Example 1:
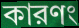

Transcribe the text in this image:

কারণং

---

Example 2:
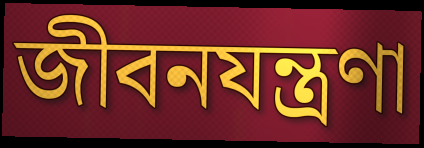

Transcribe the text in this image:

জীবনযন্ত্রণা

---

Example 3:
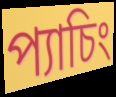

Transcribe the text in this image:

প্যাচিং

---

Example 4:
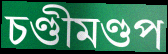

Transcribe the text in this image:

চণ্ডীমণ্ডপ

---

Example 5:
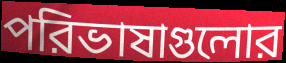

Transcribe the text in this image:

পরিভাষাগুলোর